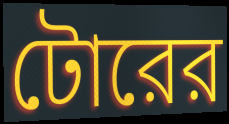
টোরের